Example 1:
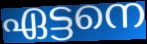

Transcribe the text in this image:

ഏട്ടനെ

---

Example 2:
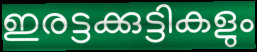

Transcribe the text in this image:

ഇരട്ടക്കുട്ടികളും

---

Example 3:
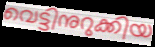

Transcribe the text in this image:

വെട്ടിനുറുക്കിയ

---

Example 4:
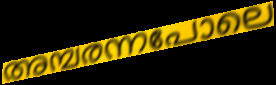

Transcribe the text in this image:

അമ്പരന്നപോലെ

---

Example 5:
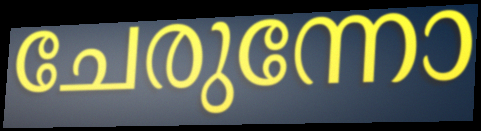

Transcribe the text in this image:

ചേരുന്നോ